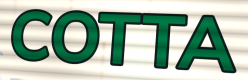
COTTA